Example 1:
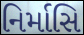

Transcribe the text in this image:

નિર્માસિ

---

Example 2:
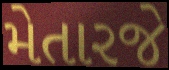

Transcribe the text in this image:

મેતારજે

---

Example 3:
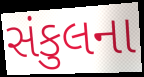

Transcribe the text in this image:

સંકુલના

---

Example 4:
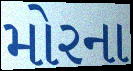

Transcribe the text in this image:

મોરના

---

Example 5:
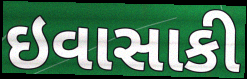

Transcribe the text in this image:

ઇવાસાકી